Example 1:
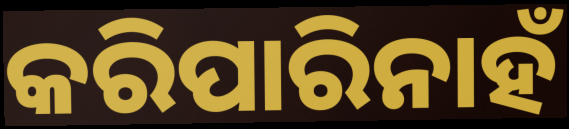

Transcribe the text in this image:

କରିପାରିନାହଁ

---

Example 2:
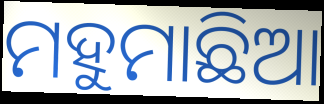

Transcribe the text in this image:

ମହୁମାଛିଆ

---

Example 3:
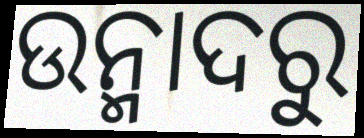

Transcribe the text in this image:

ଉନ୍ମାଦରୁ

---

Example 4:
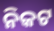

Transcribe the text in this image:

ନିକଟ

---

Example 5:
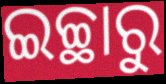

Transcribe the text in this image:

ଇଚ୍ଛାରୁ